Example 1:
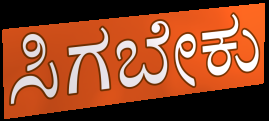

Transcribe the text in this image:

ಸಿಗಬೇಕು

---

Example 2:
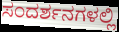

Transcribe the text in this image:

ಸಂದರ್ಶನಗಳಲ್ಲಿ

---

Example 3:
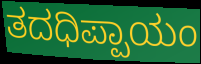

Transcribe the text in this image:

ತದಧಿಪ್ಪಾಯಂ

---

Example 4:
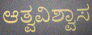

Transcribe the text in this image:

ಆತ್ವವಿಶ್ವಾಸ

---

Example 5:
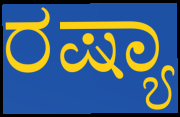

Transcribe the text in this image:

ರಷ್ಯಾ